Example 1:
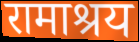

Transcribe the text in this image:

रामाश्रय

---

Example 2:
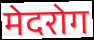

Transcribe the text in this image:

मेदरोग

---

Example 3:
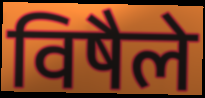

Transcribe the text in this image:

विषैले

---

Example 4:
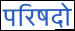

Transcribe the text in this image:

परिषदो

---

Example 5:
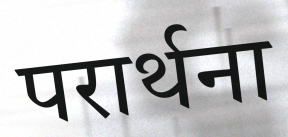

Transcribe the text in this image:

परार्थना